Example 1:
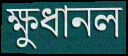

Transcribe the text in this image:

ক্ষুধানল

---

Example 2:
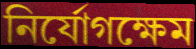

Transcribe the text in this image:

নির্যোগক্ষেম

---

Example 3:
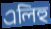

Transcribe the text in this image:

এলিহু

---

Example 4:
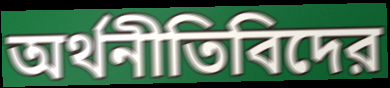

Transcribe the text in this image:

অর্থনীতিবিদের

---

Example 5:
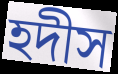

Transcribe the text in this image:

হদীস